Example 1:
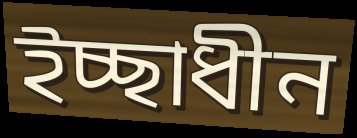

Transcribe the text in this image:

ইচ্ছাধীন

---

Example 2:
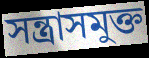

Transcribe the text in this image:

সন্ত্রাসমুক্ত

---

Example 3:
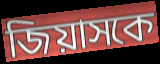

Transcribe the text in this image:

জিয়াসকে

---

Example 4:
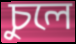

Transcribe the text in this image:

চুলে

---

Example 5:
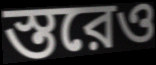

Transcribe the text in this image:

স্তরেও